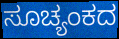
ಸೂಚ್ಯಂಕದ